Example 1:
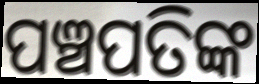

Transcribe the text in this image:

ପଞ୍ଚପତିଙ୍କ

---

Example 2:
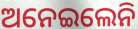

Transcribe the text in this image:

ଅନେଇଲେନି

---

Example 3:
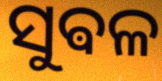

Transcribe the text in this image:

ସୁଵଳ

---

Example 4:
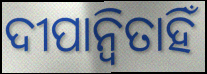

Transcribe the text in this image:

ଦୀପାନ୍ୱିତାହିଁ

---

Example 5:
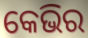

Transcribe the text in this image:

କେଭିର